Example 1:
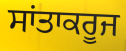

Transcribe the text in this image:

ਸਾਂਤਾਕਰੂਜ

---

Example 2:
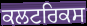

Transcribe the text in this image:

ਕਲਟਰਿਕਸ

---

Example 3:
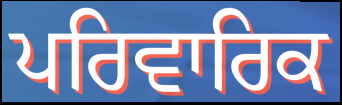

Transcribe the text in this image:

ਪਰਿਵਾਰਿਕ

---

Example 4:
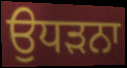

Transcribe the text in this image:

ਉਧੜਨਾ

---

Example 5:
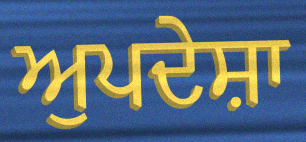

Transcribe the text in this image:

ਅੁਪਦੇਸ਼ਾ